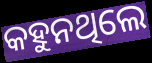
କହୁନଥିଲେ